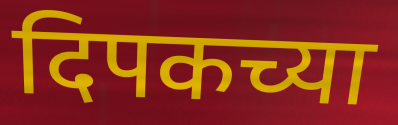
दिपकच्या